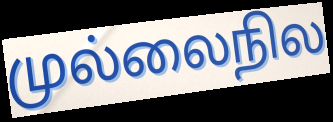
முல்லைநில